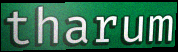
tharum